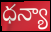
ధన్యా